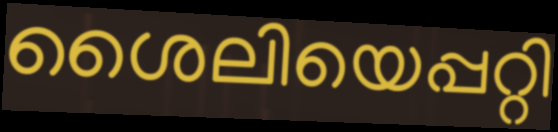
ശൈലിയെപ്പറ്റി